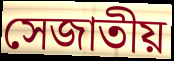
সেজাতীয়